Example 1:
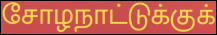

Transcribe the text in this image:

சோழநாட்டுக்குக்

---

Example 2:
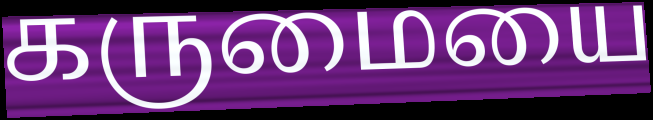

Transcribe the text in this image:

கருமையை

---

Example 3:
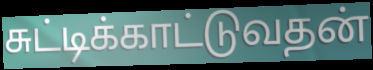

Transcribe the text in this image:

சுட்டிக்காட்டுவதன்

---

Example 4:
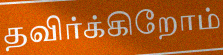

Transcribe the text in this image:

தவிர்க்கிறோம்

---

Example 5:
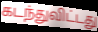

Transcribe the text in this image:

கடந்துவிட்டது